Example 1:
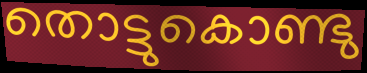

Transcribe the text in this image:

തൊട്ടുകൊണ്ടു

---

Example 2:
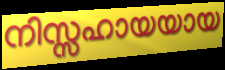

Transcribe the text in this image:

നിസ്സഹായയായ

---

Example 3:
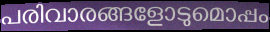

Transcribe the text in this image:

പരിവാരങ്ങളോടുമൊപ്പം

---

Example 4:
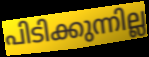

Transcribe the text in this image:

പിടിക്കുന്നില്ല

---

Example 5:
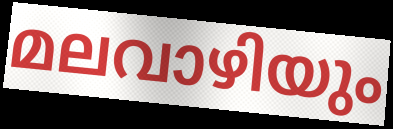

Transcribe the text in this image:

മലവാഴിയും